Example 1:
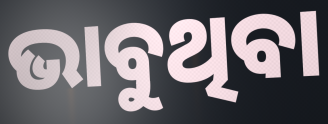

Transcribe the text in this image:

ଭାବୁଥିବା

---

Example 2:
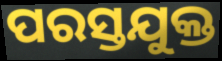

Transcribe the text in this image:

ପରସ୍ତଯୁକ୍ତ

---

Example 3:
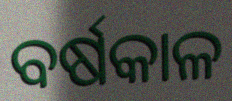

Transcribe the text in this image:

ବର୍ଷକାଳ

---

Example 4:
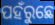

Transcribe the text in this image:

ପହଁରୁଛେ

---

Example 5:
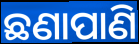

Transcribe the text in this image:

ଛଣାପାଣି